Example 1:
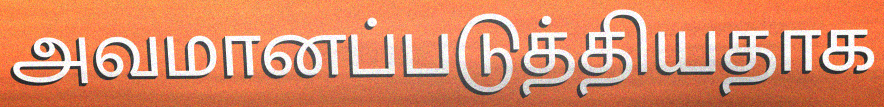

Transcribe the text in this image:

அவமானப்படுத்தியதாக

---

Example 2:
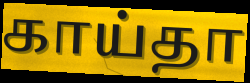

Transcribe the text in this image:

காய்தா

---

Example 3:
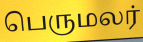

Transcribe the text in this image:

பெருமலர்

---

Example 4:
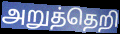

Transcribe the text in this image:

அறுத்தெறி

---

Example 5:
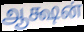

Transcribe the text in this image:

ஆக்ஷன்